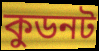
কুডনট